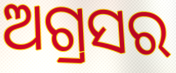
ଅଗ୍ରସର